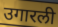
उगारली